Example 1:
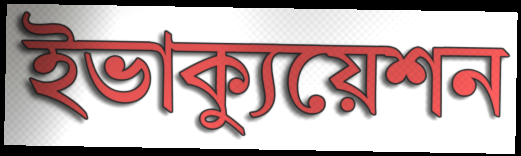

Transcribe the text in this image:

ইভাক্যুয়েশন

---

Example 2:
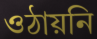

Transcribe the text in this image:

ওঠায়নি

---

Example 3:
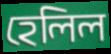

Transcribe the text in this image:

হেলিল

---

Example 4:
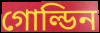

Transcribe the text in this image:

গোল্ডিন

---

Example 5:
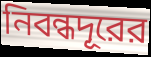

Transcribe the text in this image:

নিবন্ধদূরের